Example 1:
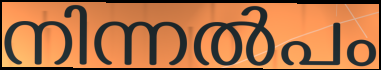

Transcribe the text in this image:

നിന്നൽപം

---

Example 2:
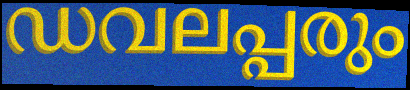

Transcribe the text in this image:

ഡവലപ്പരും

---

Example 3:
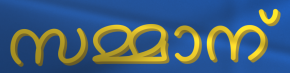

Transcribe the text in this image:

സമ്മാന്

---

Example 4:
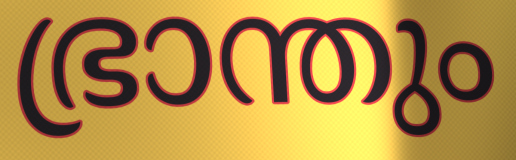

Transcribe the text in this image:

ഭ്രാന്തും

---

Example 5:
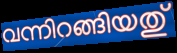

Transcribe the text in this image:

വന്നിറങ്ങിയതു്